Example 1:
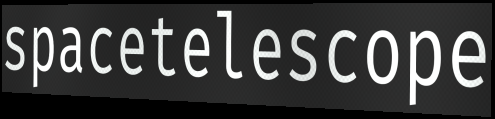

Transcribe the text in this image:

spacetelescope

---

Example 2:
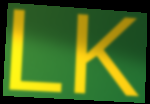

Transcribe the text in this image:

LK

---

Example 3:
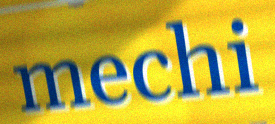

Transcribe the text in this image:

mechi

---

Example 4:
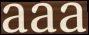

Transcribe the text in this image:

aaa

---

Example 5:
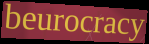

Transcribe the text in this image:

beurocracy